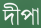
দীপা